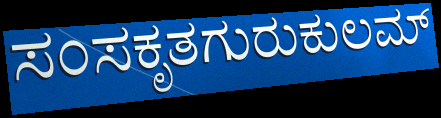
ಸಂಸಕೃತಗುರುಕುಲಮ್